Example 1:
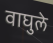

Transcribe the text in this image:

वाघुले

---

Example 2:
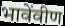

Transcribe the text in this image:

भावेंवीण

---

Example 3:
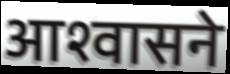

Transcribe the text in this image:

आश्वासने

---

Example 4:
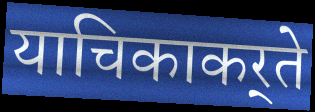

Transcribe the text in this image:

याचिकाकर्ते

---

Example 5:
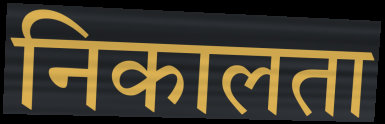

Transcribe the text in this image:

निकालता